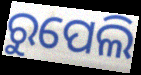
ରୁପେଲି